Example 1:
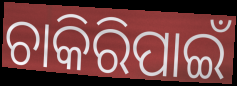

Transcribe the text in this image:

ଚାକିରିପାଇଁ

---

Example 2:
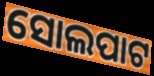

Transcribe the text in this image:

ସୋଲପାଟ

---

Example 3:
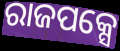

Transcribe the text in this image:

ରାଜପକ୍ସେ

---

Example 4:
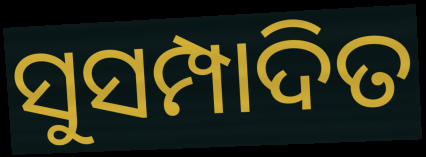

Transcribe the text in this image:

ସୁସମ୍ପାଦିତ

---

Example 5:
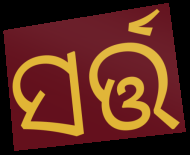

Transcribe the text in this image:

ସର୍ତ୍ତ